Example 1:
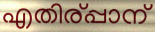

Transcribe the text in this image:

എതിര്പ്പാന്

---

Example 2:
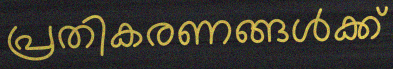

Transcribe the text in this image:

പ്രതികരണങ്ങൾക്ക്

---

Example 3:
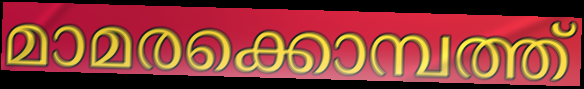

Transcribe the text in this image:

മാമരക്കൊമ്പത്ത്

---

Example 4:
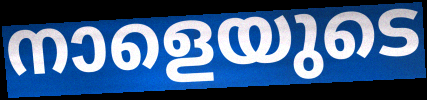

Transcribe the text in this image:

നാളെയുടെ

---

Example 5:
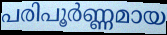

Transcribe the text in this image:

പരിപൂർണ്ണമായ